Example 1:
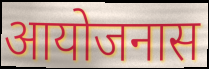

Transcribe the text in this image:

आयोजनास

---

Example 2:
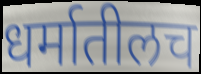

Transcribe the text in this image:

धर्मातीलच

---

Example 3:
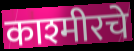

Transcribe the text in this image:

काश्मीरचे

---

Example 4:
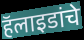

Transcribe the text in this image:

हॅलाइडांचे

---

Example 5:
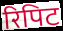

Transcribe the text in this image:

रिपिट